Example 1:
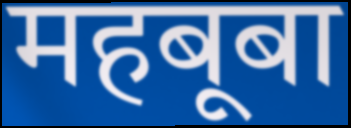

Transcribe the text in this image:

महबूबा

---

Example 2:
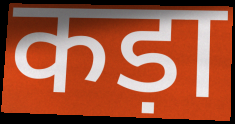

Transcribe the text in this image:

कड़ा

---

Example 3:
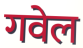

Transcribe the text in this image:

गवेल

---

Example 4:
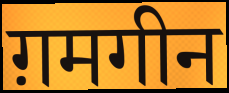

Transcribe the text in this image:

ग़मगीन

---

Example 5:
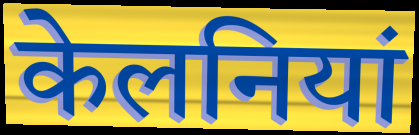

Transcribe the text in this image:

केलनियां